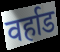
वर्हाड